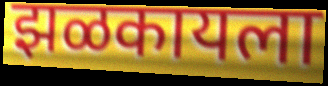
झळकायला